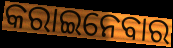
କରାଇନେବାର